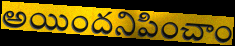
అయిందనిపించాం